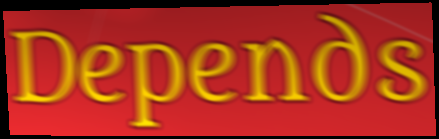
Depends